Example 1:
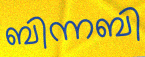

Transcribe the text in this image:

ബിന്നബി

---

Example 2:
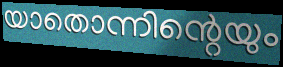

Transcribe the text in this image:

യാതൊന്നിന്റെയും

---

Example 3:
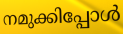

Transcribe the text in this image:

നമുക്കിപ്പോൾ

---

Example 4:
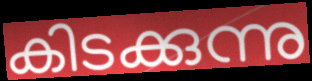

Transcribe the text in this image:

കിടക്കുന്നു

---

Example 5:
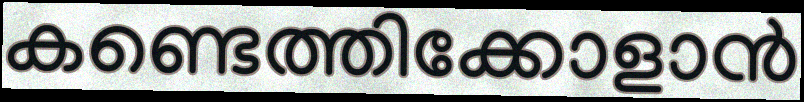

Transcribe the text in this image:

കണ്ടെത്തിക്കോളാൻ